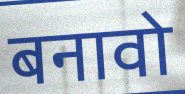
बनावो